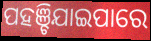
ପହଞ୍ଚିଯାଇପାରେ